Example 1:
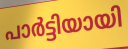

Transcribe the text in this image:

പാർട്ടിയായി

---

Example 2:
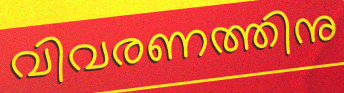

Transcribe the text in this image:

വിവരണത്തിനു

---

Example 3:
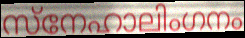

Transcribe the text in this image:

സ്നേഹാലിംഗനം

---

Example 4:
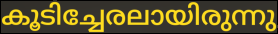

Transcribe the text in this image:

കൂടിച്ചേരലായിരുന്നു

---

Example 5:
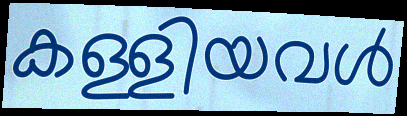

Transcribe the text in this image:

കള്ളിയവൾ